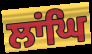
ਲਾਂਘਿ